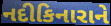
નદીકિનારાને